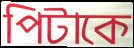
পিটাকে